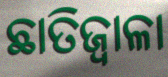
ଛାତିଜ୍ୱାଳା